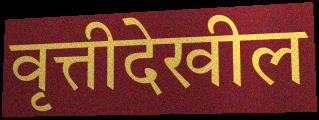
वृत्तीदेखील